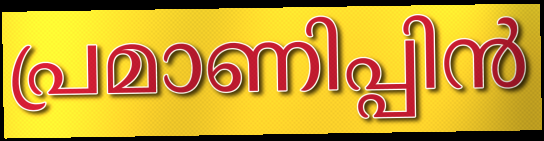
പ്രമാണിപ്പിൻ